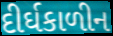
દીર્ઘકાળીન